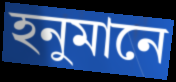
হনুমানে